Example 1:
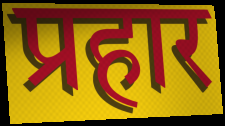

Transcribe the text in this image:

प्रहार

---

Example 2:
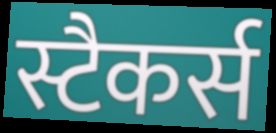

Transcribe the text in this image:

स्टैकर्स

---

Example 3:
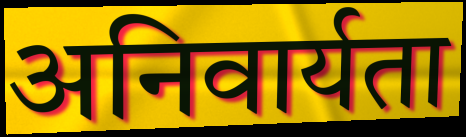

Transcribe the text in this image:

अनिवार्यता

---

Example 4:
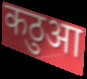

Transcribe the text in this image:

कठुआ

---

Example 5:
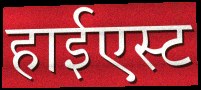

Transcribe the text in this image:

हाईएस्ट